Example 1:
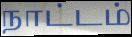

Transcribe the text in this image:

நாட்டம்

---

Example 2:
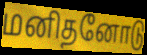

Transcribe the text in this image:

மனிதனோடு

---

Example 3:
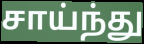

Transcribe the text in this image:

சாய்ந்து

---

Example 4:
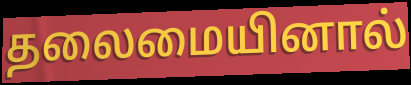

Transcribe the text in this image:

தலைமையினால்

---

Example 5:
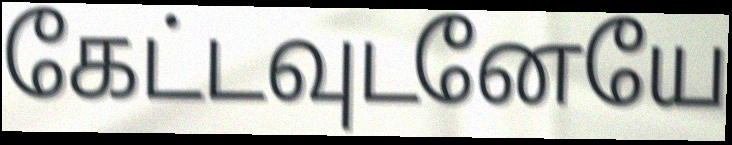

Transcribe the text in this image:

கேட்டவுடனேயே